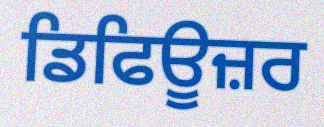
ਡਿਫਿਊਜ਼ਰ